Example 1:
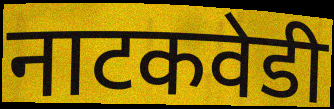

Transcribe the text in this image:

नाटकवेडी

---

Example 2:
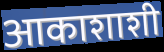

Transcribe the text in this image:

आकाशाशी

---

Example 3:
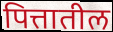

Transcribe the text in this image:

पित्तातील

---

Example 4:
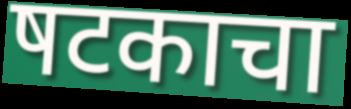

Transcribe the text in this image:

षटकाचा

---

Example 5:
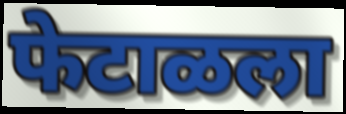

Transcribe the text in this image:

फेटाळला